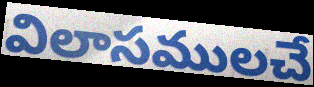
విలాసములచే